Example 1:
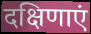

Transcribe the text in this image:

दक्षिणाएं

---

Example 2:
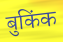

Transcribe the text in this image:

बुकिंक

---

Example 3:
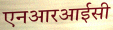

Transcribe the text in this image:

एनआरआईसी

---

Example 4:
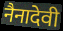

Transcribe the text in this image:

नैनादेवी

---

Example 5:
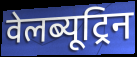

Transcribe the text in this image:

वेलब्यूट्रिन